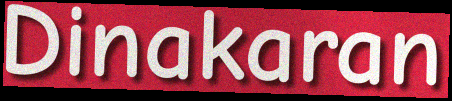
Dinakaran